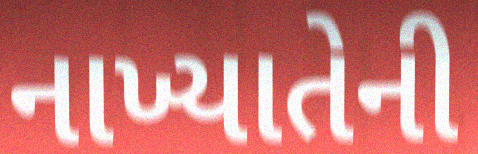
નાખ્યાતેની